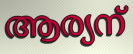
ആര്യന്